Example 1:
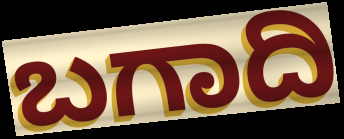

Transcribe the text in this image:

ಬಗಾದಿ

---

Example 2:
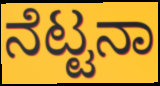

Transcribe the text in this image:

ನೆಟ್ಟನಾ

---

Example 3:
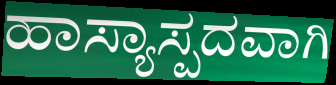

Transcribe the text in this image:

ಹಾಸ್ಯಾಸ್ಪದವಾಗಿ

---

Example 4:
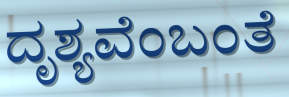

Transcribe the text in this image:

ದೃಶ್ಯವೆಂಬಂತೆ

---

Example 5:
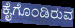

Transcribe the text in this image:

ಕೈಗೊಂಡಿರುವ